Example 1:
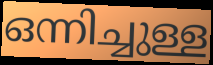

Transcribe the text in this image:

ഒന്നിച്ചുള്ള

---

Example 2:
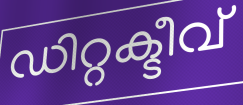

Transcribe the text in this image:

ഡിറ്റക്ടീവ്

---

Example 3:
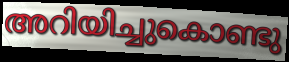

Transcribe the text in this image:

അറിയിച്ചുകൊണ്ടു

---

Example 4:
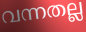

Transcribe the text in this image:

വന്നതല്ല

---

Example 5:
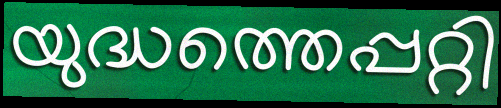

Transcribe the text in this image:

യുദ്ധത്തെപ്പറ്റി